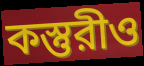
কস্তুরীও